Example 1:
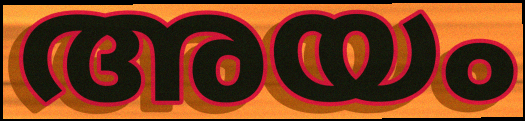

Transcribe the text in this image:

അയം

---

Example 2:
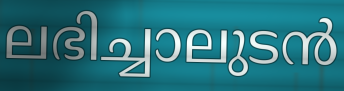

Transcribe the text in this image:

ലഭിച്ചാലുടൻ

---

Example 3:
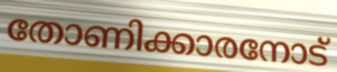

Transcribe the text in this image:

തോണിക്കാരനോട്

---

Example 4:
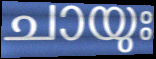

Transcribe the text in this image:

ചായുഃ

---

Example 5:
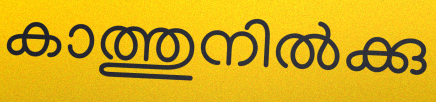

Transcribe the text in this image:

കാത്തുനിൽക്കു